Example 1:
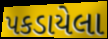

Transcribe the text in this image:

પકડાયેલા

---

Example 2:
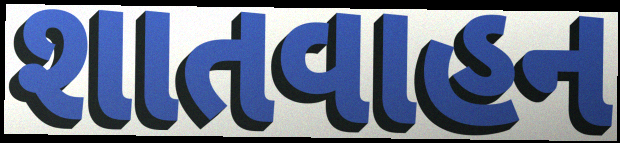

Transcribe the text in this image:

શાતવાહન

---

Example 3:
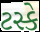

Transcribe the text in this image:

ટસ્કે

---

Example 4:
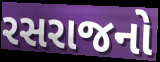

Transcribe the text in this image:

રસરાજનો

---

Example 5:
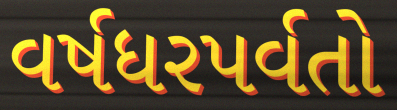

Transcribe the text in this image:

વર્ષધરપર્વતો